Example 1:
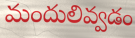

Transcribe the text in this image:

మందులివ్వడం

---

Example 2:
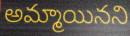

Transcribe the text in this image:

అమ్మాయినని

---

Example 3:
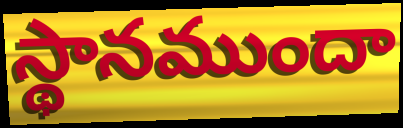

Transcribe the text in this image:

స్థానముందా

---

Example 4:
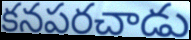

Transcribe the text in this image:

కనపరచాడు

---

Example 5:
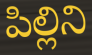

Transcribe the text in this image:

పిల్లిని